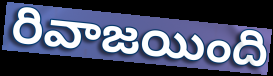
రివాజయింది